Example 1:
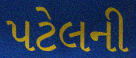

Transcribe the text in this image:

પટેલની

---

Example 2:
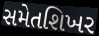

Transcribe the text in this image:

સમેતશિખર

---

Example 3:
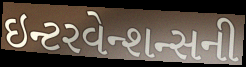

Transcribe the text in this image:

ઇન્ટરવેન્શન્સની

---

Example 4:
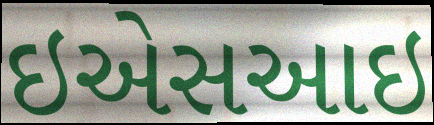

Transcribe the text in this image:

ઇએસઆઇ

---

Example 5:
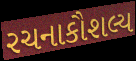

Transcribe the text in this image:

રચનાકૌશલ્ય